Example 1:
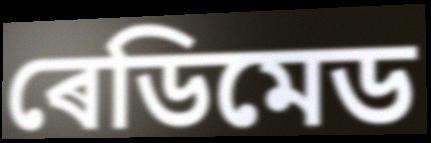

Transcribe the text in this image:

ৰেডিমেড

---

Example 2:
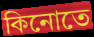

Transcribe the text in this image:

কিনোতে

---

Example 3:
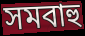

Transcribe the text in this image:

সমবাহু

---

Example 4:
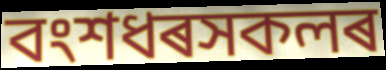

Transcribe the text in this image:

বংশধৰসকলৰ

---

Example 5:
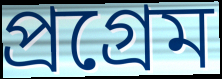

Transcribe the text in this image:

প্ৰগ্ৰেম